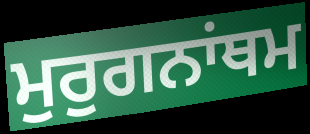
ਮੁਰੁਗਨਾਂਥਮ